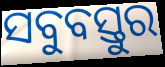
ସବୁବସ୍ତୁର